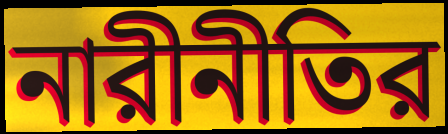
নারীনীতির